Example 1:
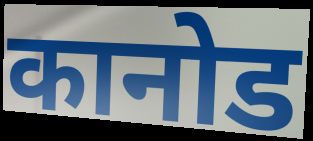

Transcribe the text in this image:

कानोड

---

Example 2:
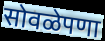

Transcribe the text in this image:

सोवळेपणा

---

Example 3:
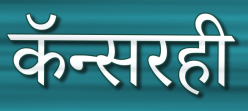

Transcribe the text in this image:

कॅन्सरही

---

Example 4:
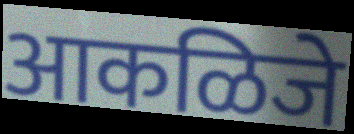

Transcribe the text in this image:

आकळिजे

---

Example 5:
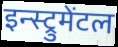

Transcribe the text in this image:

इन्स्ट्रुमेंटल